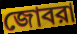
জোবরা